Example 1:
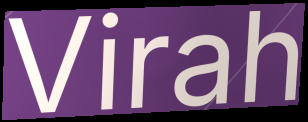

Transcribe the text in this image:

Virah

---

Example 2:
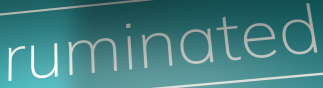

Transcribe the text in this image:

ruminated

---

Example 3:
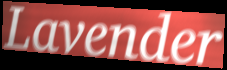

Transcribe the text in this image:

Lavender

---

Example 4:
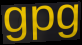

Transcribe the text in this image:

gpg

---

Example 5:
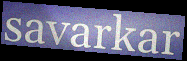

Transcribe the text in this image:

savarkar